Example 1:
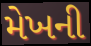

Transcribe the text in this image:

મેખની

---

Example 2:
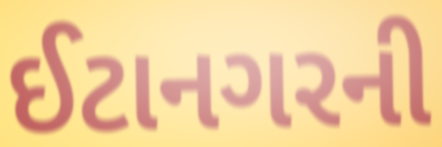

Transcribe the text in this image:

ઈટાનગરની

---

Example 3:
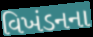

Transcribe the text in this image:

વિખંડનના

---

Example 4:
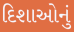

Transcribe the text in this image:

દિશાઓનું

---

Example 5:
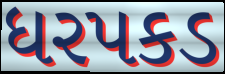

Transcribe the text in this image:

ધરપકડ